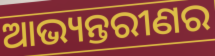
ଆଭ୍ୟନ୍ତରୀଣର